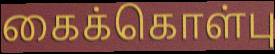
கைக்கொள்பு